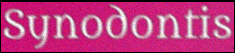
Synodontis